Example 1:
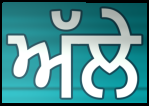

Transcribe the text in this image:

ਅੱਲੇ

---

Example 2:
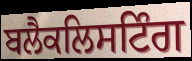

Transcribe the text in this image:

ਬਲੈਕਲਿਸਟਿੰਗ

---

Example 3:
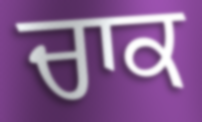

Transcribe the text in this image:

ਚਾਕ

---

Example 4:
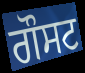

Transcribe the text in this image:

ਗੌਸਟ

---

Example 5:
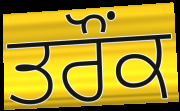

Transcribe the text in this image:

ਤਰੌਂਕ